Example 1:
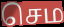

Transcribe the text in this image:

செம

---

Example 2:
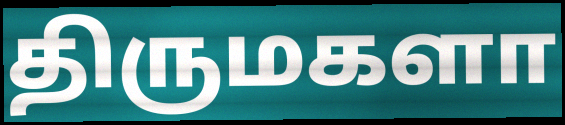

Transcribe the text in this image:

திருமகளா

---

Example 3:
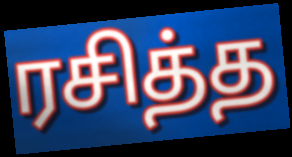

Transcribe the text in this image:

ரசித்த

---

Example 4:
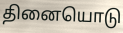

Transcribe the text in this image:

தினையொடு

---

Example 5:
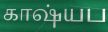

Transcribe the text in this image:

காஷ்யப